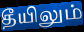
தீயிலும்